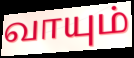
வாயும்